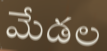
మేడల